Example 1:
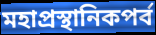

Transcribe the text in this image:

মহাপ্রস্থানিকপর্ব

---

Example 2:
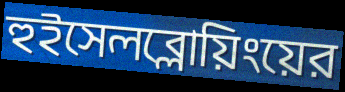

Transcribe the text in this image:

হুইসেলব্লোয়িংয়ের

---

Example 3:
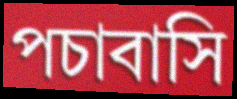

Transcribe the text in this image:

পচাবাসি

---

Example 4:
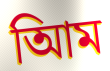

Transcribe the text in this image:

আিম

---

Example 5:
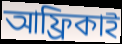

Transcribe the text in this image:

আফ্রিকাই